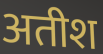
अतीश